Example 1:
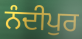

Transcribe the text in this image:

ਨੰਦੀਪੁਰ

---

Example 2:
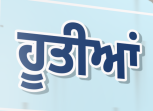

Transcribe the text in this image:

ਹੂਤੀਆਂ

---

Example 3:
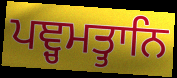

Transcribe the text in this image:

ਪਞ੍ਚਮਤ੍ਤਾਨਿ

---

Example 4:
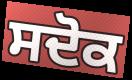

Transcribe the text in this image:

ਸਦੋਕ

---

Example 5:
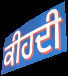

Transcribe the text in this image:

ਕੀਹਦੀ